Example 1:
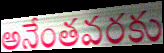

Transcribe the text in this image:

అనేంతవరకు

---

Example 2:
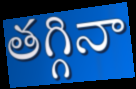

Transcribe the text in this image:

తగ్గినా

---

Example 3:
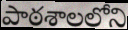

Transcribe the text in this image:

పాఠశాలలోని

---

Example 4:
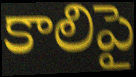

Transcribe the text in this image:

కాలిపై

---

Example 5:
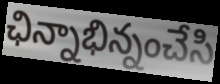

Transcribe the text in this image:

ఛిన్నాభిన్నంచేసి